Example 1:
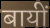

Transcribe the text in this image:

बायीं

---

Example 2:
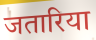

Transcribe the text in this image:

जतारिया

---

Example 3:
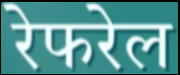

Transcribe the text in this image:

रेफरेल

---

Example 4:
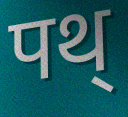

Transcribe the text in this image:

पथ्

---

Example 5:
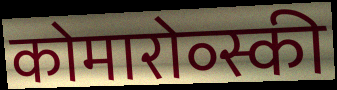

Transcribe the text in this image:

कोमारोव्स्की